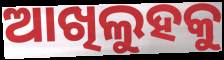
ଆଖିଲୁହକୁ